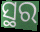
ସ୍ଥର